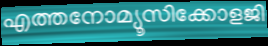
എത്തനോമ്യൂസിക്കോളജി